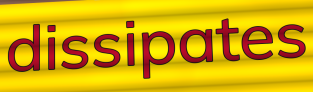
dissipates